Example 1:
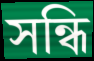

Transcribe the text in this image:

সন্ধি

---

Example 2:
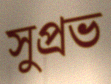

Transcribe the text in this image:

সুপ্রভ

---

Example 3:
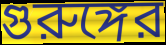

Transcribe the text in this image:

গুরুঙ্গের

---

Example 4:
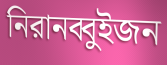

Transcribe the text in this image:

নিরানব্বুইজন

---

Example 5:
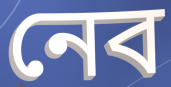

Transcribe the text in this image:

নেব